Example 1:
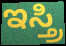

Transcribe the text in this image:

ಇಸ್ತ್ರಿ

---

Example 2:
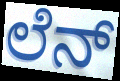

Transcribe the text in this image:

ಲೆನ್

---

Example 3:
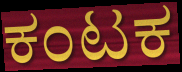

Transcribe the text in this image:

ಕಂಟಕ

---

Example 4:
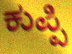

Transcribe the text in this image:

ಕುಪ್ಪಿ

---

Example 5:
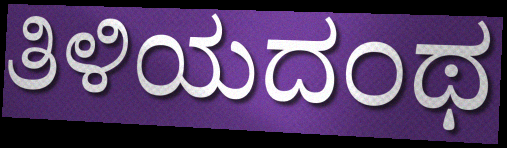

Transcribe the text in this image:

ತಿಳಿಯದಂಥ